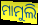
ମାମୁଲି